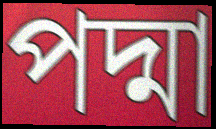
পদ্মা